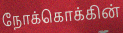
நோக்கொக்கின்